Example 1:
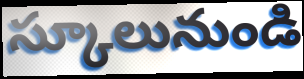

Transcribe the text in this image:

స్కూలునుండి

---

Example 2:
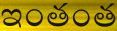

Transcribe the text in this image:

ఇంతంత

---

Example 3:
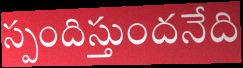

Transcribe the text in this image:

స్పందిస్తుందనేది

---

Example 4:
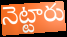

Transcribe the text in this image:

నెట్టారు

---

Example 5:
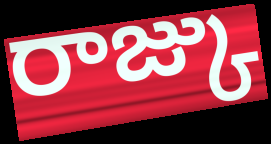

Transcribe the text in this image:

రాజ్కు